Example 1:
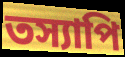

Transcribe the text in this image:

তস্যাপি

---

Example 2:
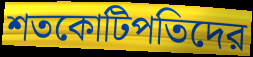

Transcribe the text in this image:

শতকোটিপতিদের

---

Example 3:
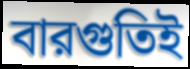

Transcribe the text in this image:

বারগুতিই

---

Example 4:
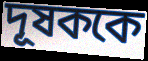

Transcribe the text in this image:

দূষককে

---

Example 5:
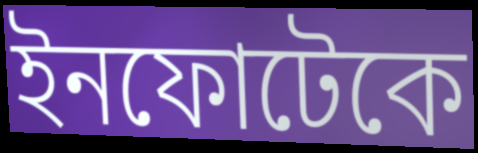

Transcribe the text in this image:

ইনফোটেকে